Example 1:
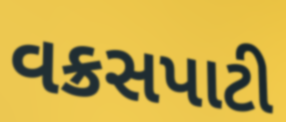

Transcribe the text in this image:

વક્રસપાટી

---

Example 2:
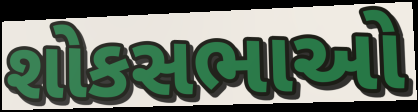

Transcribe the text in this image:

શોકસભાઓ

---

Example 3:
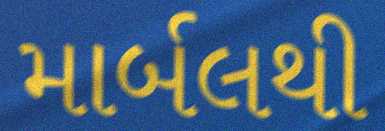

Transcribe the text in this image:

માર્બલથી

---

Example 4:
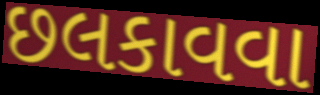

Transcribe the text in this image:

છલકાવવા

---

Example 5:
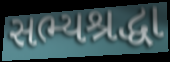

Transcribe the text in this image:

સભ્યશ્રદ્ધા